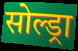
सोल्ड्रा